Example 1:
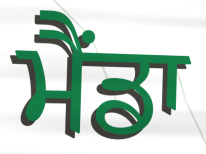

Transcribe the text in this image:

ਮੈਂਡਾ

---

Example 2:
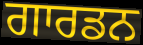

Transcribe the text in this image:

ਗਾਰਡਨ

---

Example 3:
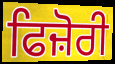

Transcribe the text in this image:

ਫਿਜ਼ੋਰੀ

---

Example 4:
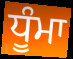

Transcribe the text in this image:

ਧੂੰਮਾ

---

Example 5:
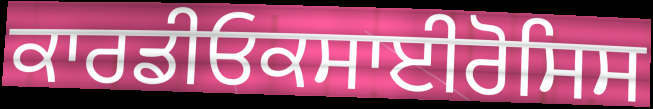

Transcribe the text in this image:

ਕਾਰਡੀਓਕਸਾਈਰੋਸਿਸ